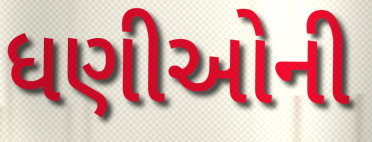
ધણીઓની